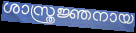
ശാസ്ത്രജ്ഞനായ